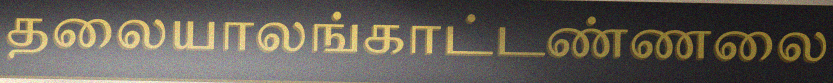
தலையாலங்காட்டண்ணலை